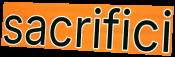
sacrifici